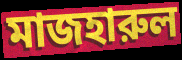
মাজহারুল